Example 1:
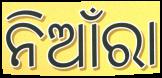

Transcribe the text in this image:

ନିଆଁରା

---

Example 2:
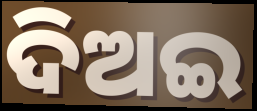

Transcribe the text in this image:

ଦିଅଇ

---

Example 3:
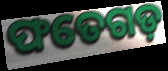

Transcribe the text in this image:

ଫତେଗଡ଼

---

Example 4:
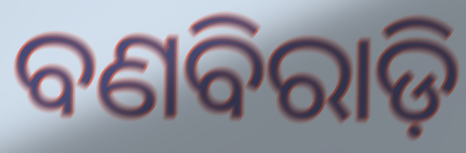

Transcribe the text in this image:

ବଣବିରାଡ଼ି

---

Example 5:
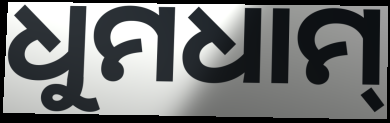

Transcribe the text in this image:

ଧୁମଧାମ୍